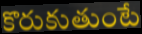
కొరుకుతుంటే